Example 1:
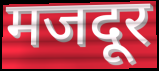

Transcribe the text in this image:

मजदूर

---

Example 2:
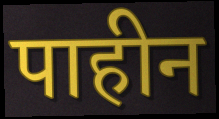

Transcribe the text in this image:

पाहीन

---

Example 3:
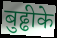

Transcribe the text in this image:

बुढ्ढीके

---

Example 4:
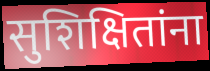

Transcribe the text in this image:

सुशिक्षितांना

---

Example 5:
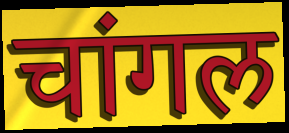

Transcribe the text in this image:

चांगल